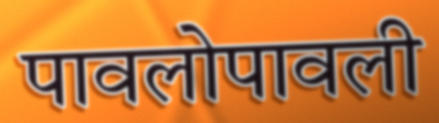
पावलोपावली